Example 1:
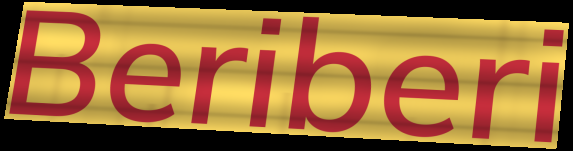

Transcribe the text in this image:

Beriberi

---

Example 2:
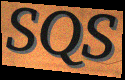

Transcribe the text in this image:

SQS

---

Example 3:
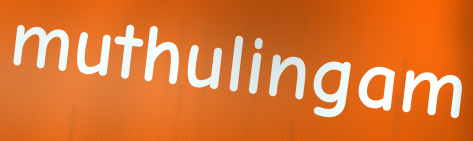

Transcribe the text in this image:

muthulingam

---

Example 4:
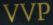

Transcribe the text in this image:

VVP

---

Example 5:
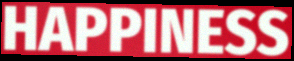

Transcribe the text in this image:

HAPPINESS